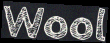
Wool